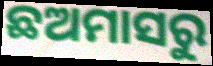
ଛଅମାସରୁ